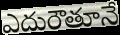
ఎదురౌతూనే